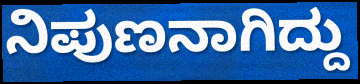
ನಿಪುಣನಾಗಿದ್ದು